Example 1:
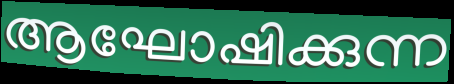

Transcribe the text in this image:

ആഘോഷിക്കുന്ന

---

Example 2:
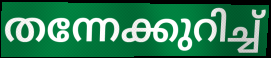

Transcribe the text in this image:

തന്നേക്കുറിച്ച്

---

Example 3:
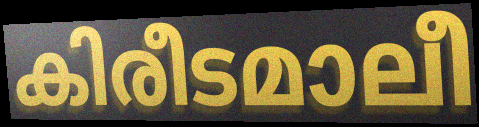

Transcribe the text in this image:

കിരീടമാലീ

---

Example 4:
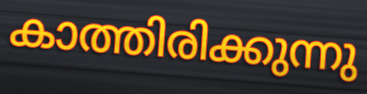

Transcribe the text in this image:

കാത്തിരിക്കുന്നു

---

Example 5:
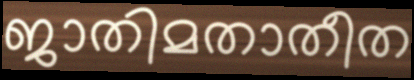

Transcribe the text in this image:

ജാതിമതാതീത